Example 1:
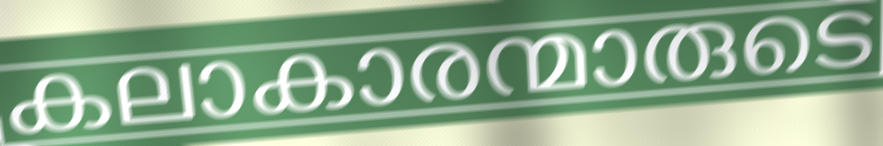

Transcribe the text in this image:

കലാകാരന്മാരുടെ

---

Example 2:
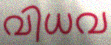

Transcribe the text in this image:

വിധവ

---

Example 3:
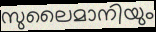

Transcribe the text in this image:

സുലൈമാനിയും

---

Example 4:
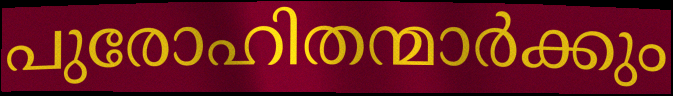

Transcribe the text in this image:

പുരോഹിതന്മാർക്കും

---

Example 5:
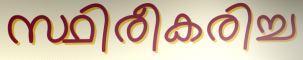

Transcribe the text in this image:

സ്ഥിരീകരിച്ച